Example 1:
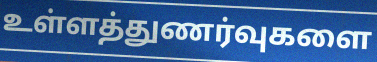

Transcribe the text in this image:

உள்ளத்துணர்வுகளை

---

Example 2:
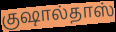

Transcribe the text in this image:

குஷால்தாஸ்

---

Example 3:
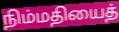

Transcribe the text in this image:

நிம்மதியைத்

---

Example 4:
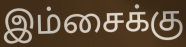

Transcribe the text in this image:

இம்சைக்கு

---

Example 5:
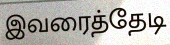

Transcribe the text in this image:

இவரைத்தேடி